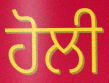
ਹੋਲੀ